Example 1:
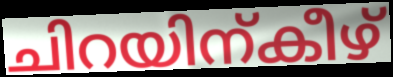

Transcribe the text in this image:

ചിറയിന്കീഴ്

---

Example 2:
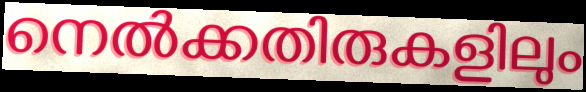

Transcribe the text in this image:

നെൽക്കതിരുകളിലും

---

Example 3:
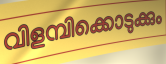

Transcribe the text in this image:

വിളമ്പിക്കൊടുക്കും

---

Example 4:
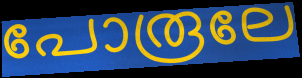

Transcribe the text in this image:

പോരൂലേ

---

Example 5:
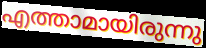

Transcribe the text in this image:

എത്താമായിരുന്നു